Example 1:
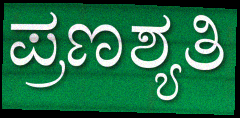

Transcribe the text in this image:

ಪ್ರಣಶ್ಯತಿ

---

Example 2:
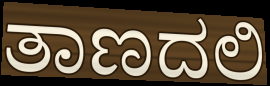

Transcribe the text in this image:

ತಾಣದಲಿ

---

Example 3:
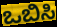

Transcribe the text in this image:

ಒಬಿಸಿ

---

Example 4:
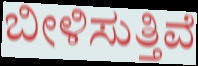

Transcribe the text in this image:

ಬೀಳಿಸುತ್ತಿವೆ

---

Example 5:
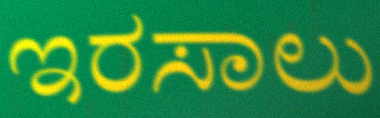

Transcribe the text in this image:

ಇರಸಾಲು